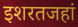
इशरतजहां